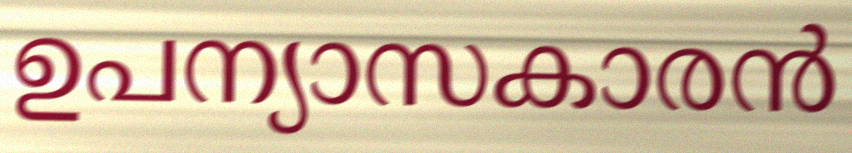
ഉപന്യാസകാരൻ